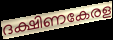
ദക്ഷിണകേരള